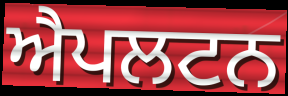
ਐਪਲਟਨ